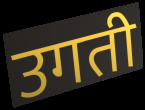
उगती